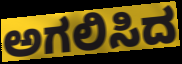
ಅಗಲಿಸಿದ